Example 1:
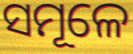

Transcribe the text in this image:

ସମୂଳେ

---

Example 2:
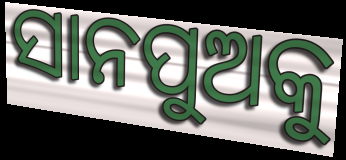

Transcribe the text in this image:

ସାନପୁଅକୁ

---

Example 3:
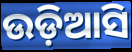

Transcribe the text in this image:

ଉଡ଼ିଆସି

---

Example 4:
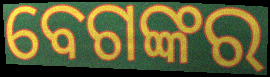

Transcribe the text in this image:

ବେଗଙ୍କର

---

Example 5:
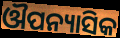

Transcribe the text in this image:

ଔପନ୍ୟାସିକ